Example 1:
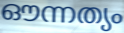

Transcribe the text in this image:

ഔന്നത്യം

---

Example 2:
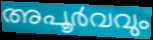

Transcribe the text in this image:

അപൂർവവും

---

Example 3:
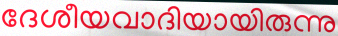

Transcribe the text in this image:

ദേശീയവാദിയായിരുന്നു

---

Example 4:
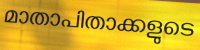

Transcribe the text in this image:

മാതാപിതാക്കളുടെ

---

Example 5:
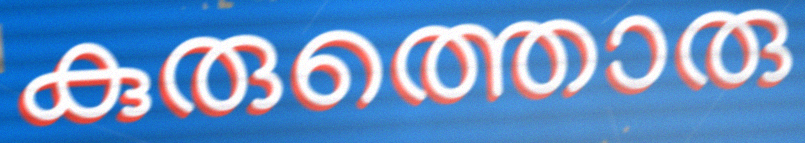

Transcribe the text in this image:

കുരുത്തൊരു